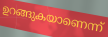
ഉറങ്ങുകയാണെന്ന്